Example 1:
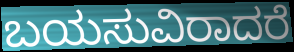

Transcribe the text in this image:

ಬಯಸುವಿರಾದರೆ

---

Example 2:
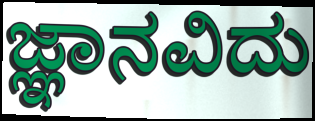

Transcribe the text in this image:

ಜ್ಞಾನವಿದು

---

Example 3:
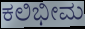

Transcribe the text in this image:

ಕಲಿಭೀಮ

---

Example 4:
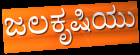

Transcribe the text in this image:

ಜಲಕೃಷಿಯು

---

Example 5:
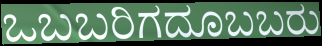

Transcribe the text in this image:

ಒಬಬರಿಗದೂಬಬರು